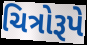
ચિત્રોરૂપે